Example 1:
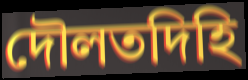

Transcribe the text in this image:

দৌলতদিহি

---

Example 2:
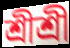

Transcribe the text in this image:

শ্রীশ্রী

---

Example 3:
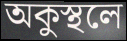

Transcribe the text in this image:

অকুস্থলে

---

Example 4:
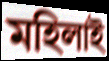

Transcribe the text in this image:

মহিলাই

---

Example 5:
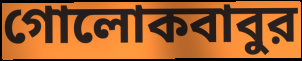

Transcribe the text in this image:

গোলোকবাবুর